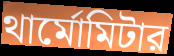
থার্মোমিটার